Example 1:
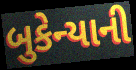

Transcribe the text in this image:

બુકેન્યાની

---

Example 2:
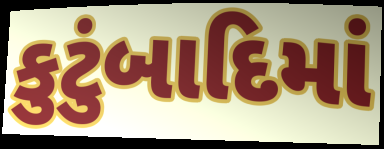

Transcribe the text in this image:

કુટુંબાદિમાં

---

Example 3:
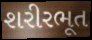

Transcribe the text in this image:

શરીરભૂત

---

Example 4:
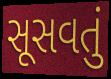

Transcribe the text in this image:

સૂસવતું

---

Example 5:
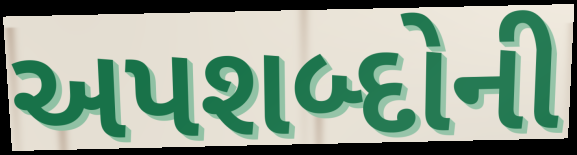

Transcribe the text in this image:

અપશબ્દોની